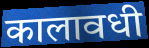
कालावधी